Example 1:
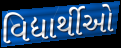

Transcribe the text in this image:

વિદ્યાર્થીઓ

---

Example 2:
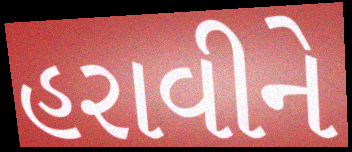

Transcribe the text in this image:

હરાવીને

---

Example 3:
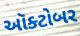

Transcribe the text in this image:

ઑક્ટોબર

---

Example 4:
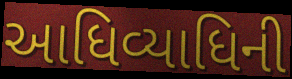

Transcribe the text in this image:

આધિવ્યાધિની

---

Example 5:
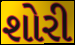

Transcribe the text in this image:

શોરી